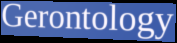
Gerontology